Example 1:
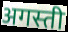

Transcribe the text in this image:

अगस्ती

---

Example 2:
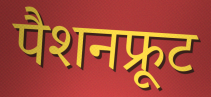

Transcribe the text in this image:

पैशनफ्रूट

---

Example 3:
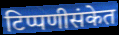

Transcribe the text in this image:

टिप्पणीसंकेत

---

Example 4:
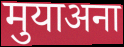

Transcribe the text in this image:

मुयाअना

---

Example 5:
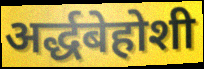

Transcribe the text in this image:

अर्द्धबेहोशी